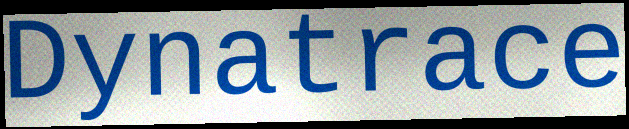
Dynatrace